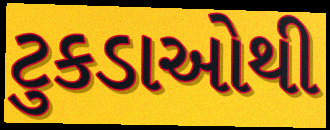
ટુકડાઓથી